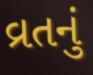
વ્રતનું